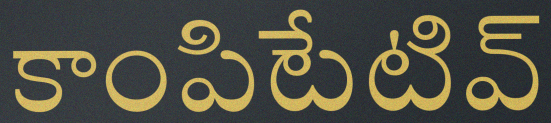
కాంపిటేటివ్